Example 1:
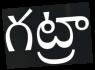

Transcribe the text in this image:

గట్రా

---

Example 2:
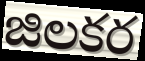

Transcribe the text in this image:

జిలకర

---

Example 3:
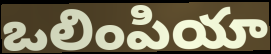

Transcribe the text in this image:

ఒలింపియా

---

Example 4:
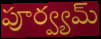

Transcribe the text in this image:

పూర్వ్యమ్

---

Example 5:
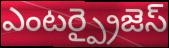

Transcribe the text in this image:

ఎంటర్ప్రైజెస్